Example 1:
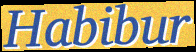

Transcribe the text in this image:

Habibur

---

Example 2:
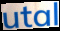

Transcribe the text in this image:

utal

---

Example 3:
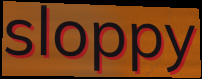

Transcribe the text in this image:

sloppy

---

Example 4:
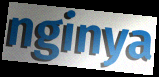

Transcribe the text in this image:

nginya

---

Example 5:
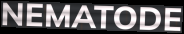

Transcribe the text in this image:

NEMATODE